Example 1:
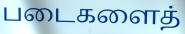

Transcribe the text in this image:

படைகளைத்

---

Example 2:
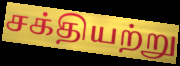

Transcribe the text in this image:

சக்தியற்று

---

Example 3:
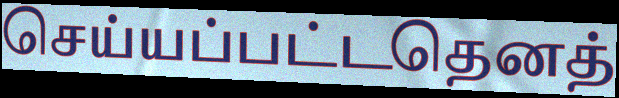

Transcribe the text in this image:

செய்யப்பட்டதெனத்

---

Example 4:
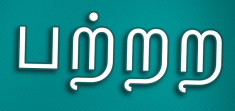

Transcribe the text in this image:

பற்றற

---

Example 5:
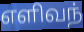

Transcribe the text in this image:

எளிவந்